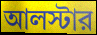
আলস্টার